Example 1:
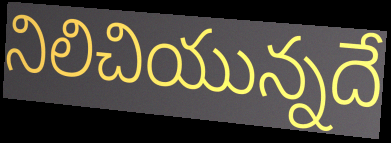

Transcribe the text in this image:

నిలిచియున్నదే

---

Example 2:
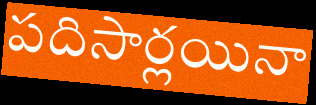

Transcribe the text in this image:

పదిసార్లయినా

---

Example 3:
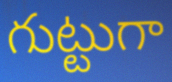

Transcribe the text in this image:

గుట్టుగా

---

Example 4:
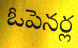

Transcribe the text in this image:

ఓపెనర్ల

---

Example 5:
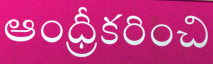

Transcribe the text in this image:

ఆంధ్రీకరించి